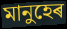
মানুহেৰ